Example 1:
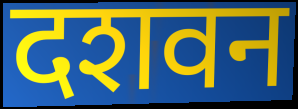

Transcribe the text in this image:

दशवन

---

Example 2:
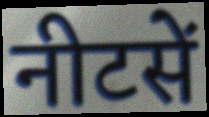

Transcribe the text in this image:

नीटसें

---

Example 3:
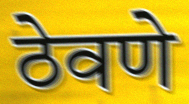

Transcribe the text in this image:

ठेवणे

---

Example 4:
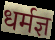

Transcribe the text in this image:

धर्मज्ञ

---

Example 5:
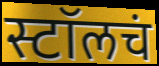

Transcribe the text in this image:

स्टॉलचं